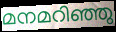
മനമറിഞ്ഞു